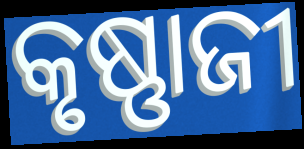
କୃଷ୍ଣାଜୀ